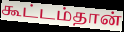
கூட்டம்தான்